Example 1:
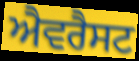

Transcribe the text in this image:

ਐਵਰੈਸਟ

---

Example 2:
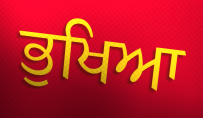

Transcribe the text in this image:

ਭੁਖਿਆ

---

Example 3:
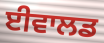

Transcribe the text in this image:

ਈਵਾਲਡ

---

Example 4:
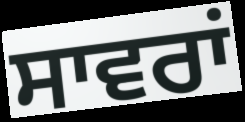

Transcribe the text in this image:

ਸਾਵਰਾਂ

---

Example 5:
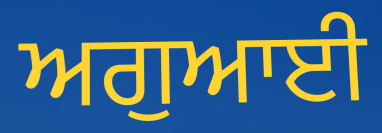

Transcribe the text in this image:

ਅਗੁਆਈ